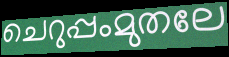
ചെറുപ്പംമുതലേ